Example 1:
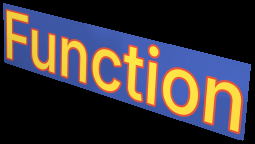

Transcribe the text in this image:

Function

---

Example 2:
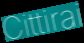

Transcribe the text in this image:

Cittirai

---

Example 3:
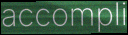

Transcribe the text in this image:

accompli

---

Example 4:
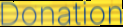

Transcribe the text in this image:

Donation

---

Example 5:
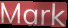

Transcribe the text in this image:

Mark